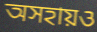
অসহায়ও